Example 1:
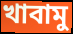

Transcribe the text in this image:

খাবামু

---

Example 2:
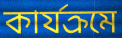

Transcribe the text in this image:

কার্যক্রমে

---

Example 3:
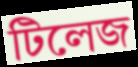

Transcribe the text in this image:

টিলেজ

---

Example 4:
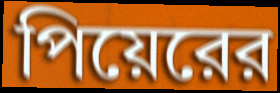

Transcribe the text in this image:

পিয়েরের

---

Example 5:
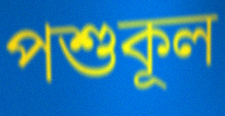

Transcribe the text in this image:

পশুকূল